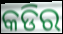
କଡିର